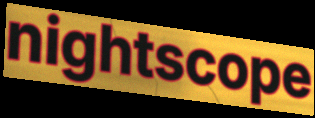
nightscope